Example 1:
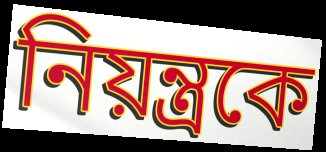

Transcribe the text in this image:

নিয়ন্ত্রকে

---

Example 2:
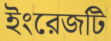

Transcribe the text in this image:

ইংরেজটি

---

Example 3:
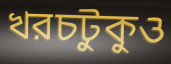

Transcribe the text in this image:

খরচটুকুও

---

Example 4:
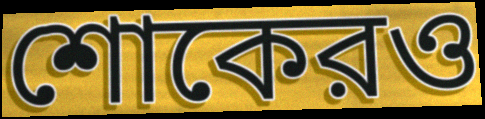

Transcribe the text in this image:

শোকেরও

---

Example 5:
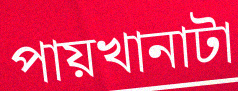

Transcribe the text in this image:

পায়খানাটা